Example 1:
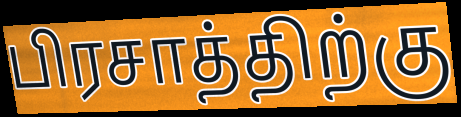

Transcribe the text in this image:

பிரசாத்திற்கு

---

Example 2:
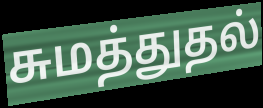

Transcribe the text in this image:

சுமத்துதல்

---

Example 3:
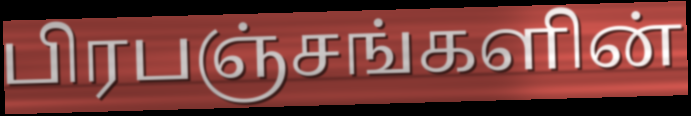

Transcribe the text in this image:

பிரபஞ்சங்களின்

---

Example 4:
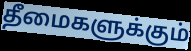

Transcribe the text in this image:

தீமைகளுக்கும்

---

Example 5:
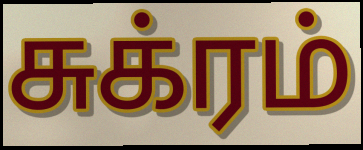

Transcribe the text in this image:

சுக்ரம்